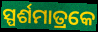
ସ୍ପର୍ଶମାତ୍ରକେ